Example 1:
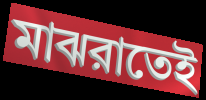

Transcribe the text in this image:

মাঝরাতেই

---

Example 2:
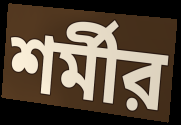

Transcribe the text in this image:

শর্মীর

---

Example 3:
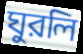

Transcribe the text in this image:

ঘুরলি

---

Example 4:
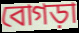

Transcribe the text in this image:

বোগড়া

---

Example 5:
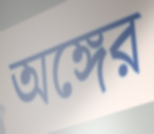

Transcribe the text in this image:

অঙ্গের